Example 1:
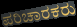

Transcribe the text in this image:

ಪರಿಚಾರಕರು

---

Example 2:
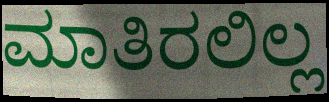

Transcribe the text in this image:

ಮಾತಿರಲಿಲ್ಲ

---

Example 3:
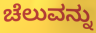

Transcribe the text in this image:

ಚೆಲುವನ್ನು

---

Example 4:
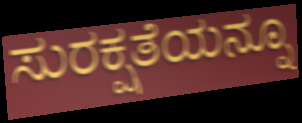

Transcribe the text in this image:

ಸುರಕ್ಷತೆಯನ್ನೂ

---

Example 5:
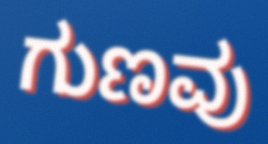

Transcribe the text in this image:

ಗುಣವು